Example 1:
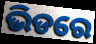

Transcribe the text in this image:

ଭିଡରେ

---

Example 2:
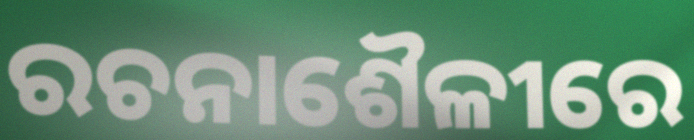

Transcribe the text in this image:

ରଚନାଶୈଳୀରେ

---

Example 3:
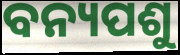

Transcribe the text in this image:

ବନ୍ୟପଶୁ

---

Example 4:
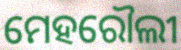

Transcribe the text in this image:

ମେହରୌଲୀ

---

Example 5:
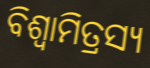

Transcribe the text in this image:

ବିଶ୍ଵାମିତ୍ରସ୍ୟ